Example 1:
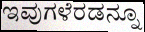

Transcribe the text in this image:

ಇವುಗಳೆರಡನ್ನೂ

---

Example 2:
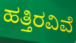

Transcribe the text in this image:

ಹತ್ತಿರವಿವೆ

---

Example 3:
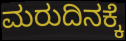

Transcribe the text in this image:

ಮರುದಿನಕ್ಕೆ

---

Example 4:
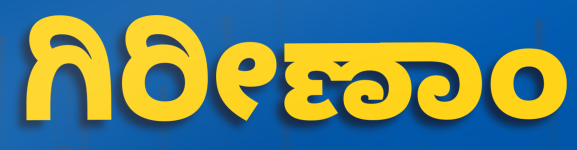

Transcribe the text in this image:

ಗಿರೀಣಾಂ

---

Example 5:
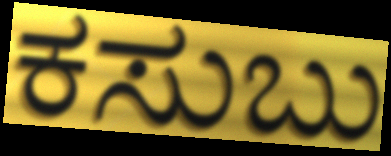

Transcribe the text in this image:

ಕಸುಬು